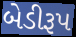
બેડીરૂપ